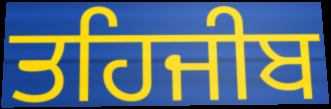
ਤਹਿਜੀਬ